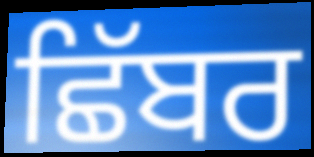
ਛਿੱਬਰ